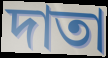
দাতা